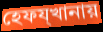
হেফয্খানায়